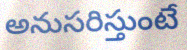
అనుసరిస్తుంటే